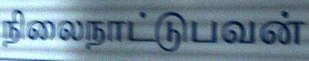
நிலைநாட்டுபவன்